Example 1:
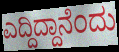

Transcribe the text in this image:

ಎದ್ದಿದ್ದಾನೆಂದು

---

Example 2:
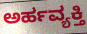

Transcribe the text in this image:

ಅರ್ಹವ್ಯಕ್ತಿ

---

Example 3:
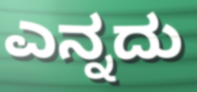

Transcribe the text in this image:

ಎನ್ನದು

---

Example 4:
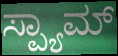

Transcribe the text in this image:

ಸ್ಪ್ಯಾಮ್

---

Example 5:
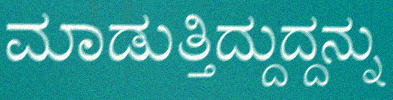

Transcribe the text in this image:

ಮಾಡುತ್ತಿದ್ದುದ್ದನ್ನು